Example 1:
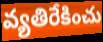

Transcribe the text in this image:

వ్యతిరేకించు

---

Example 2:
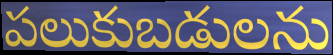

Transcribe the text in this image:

పలుకుబడులను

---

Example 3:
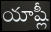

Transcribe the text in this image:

యాష్లీ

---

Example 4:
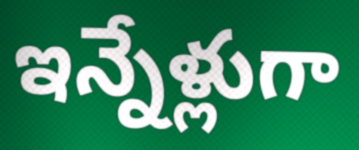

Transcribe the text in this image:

ఇన్నేళ్లుగా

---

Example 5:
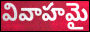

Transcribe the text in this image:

వివాహమై